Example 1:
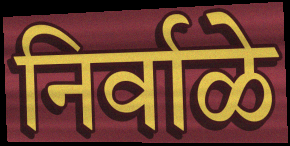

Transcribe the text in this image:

निर्वाळे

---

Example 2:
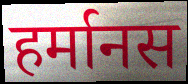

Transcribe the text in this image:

हर्मानस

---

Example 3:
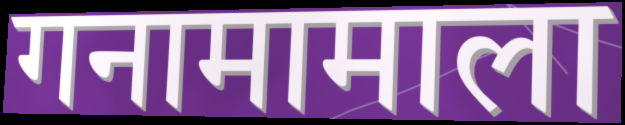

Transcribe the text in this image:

गनामामाला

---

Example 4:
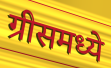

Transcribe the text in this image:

ग्रीसमध्ये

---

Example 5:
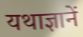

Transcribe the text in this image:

यथाज्ञानें